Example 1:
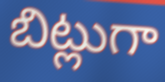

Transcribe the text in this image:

బిట్లుగా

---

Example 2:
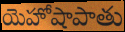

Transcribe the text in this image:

యెహోషాపాతు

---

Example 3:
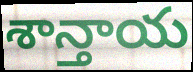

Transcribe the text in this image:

శాన్తాయ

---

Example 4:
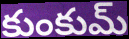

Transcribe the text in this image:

కుంకుమ్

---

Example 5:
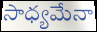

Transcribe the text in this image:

సాధ్యమేనా